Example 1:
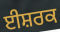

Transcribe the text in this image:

ਈਸ਼ਰਕ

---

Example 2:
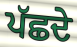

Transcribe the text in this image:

ਪੱਛਦੇ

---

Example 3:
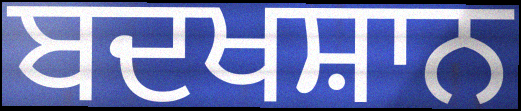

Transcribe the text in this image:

ਬਦਖਸ਼ਾਨ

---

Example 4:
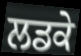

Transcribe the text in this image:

ਲਡਕੇ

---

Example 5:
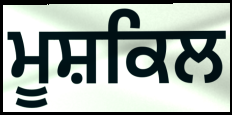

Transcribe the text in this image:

ਮੂਸ਼ਕਿਲ